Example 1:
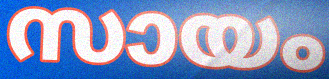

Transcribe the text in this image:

സായം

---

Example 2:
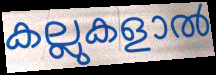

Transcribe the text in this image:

കല്ലുകളാൽ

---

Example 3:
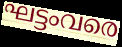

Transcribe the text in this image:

ഘട്ടംവരെ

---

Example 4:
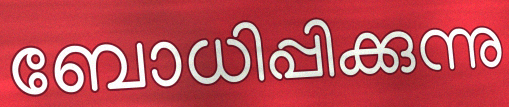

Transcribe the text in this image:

ബോധിപ്പിക്കുന്നു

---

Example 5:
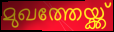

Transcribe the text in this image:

മുഖത്തേയ്ക്ക്